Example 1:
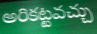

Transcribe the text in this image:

అరికట్టవచ్చు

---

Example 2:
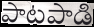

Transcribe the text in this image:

పాటపాడి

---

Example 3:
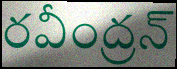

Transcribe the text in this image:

రవీంద్రన్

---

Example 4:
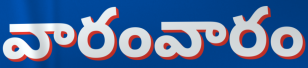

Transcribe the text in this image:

వారంవారం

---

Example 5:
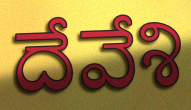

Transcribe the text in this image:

దేవేశి